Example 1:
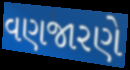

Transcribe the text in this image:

વણજારણે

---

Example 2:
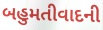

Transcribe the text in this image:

બહુમતીવાદની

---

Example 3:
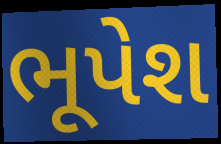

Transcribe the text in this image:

ભૂપેશ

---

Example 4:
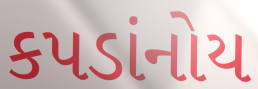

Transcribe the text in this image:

કપડાંનોય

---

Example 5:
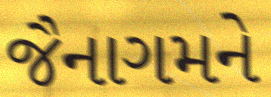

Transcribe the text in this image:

જૈનાગમને